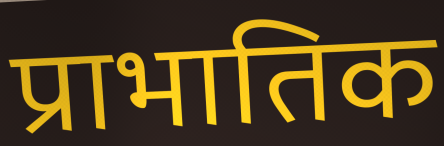
प्राभातिक